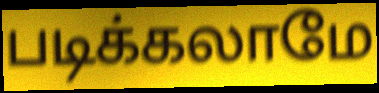
படிக்கலாமே